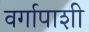
वर्गापाशी